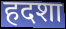
हदशा